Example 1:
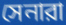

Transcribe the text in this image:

সেনারা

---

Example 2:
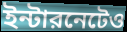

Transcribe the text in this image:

ইন্টারনেটেও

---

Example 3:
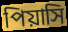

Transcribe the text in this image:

পিয়াসি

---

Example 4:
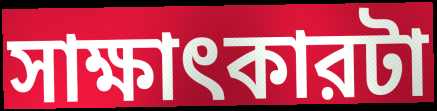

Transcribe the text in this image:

সাক্ষাৎকারটা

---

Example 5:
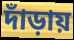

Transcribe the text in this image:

দাঁড়ায়